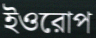
ইওরোপ